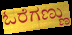
ಓರೆಗಣ್ಣು